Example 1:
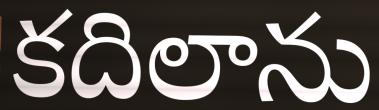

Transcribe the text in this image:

కదిలాను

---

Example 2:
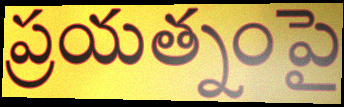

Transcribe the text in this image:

ప్రయత్నంపై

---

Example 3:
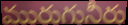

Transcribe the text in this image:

మురుగునీరు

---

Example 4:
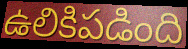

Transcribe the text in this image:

ఉలికిపడింది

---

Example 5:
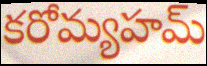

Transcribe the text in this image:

కరోమ్యహమ్